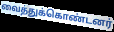
வைத்துக்கொண்டனர்